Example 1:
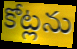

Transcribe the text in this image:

కోట్లను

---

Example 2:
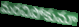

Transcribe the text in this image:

మరచిపోకుమా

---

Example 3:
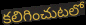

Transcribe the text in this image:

కలిగించుటలో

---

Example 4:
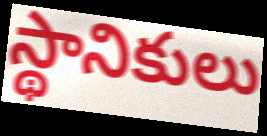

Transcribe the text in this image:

స్థానికులు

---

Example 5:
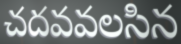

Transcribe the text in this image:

చదవవలసిన